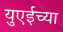
युएईच्या